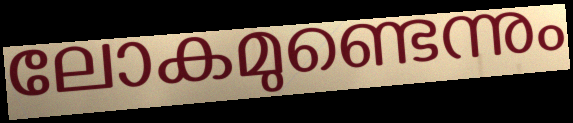
ലോകമുണ്ടെന്നും